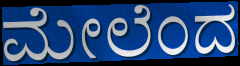
ಮೇಲೆಂದ